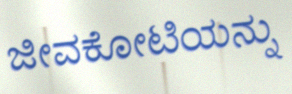
ಜೀವಕೋಟಿಯನ್ನು